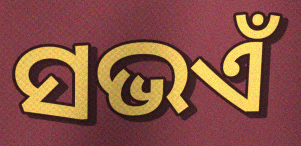
ସଭଏଁ